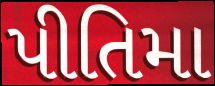
પીતિમા